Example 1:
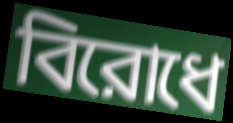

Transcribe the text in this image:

বিরোধে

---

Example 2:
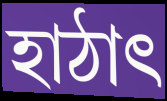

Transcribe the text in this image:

হাঠাৎ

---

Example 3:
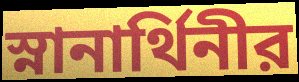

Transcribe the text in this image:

স্নানার্থিনীর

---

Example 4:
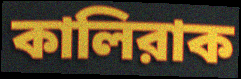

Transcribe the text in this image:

কালিরাক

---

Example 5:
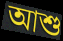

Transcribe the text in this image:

আশু